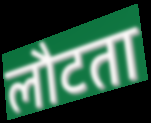
लौटता